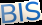
BIS